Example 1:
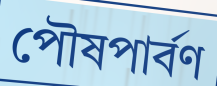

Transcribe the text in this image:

পৌষপার্বণ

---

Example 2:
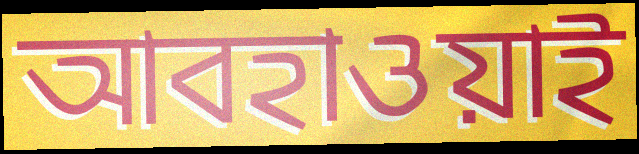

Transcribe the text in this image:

আবহাওয়াই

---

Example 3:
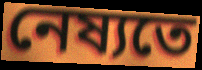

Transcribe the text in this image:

নেষ্যতে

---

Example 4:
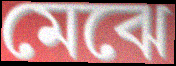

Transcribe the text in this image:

মেঝে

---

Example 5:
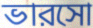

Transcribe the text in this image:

ভারসো